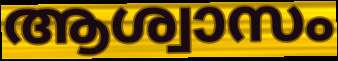
ആശ്വാസം